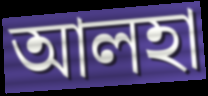
আলহা